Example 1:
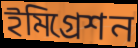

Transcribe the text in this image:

ইমিগ্রেশন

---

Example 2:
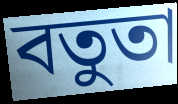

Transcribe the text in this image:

বতুতা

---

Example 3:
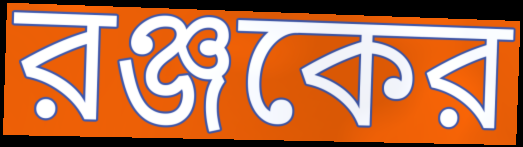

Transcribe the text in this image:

রঞ্জকের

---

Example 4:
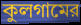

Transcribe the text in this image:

কুলগামের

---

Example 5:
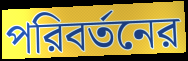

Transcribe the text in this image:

পরিবর্তনের